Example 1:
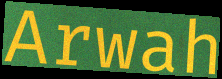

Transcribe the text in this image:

Arwah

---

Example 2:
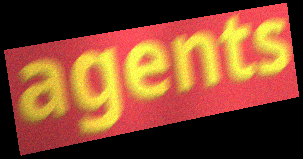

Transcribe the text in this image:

agents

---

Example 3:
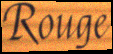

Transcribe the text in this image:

Rouge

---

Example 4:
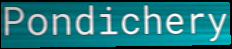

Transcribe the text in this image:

Pondichery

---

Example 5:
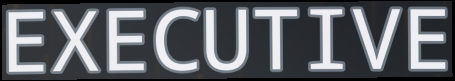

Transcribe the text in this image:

EXECUTIVE